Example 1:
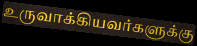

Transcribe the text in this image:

உருவாக்கியவர்களுக்கு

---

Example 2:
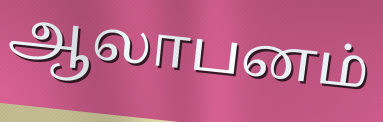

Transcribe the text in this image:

ஆலாபனம்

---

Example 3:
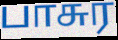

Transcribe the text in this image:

பாசுர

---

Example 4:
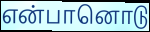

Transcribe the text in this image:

என்பானொடு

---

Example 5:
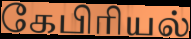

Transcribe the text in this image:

கேபிரியல்